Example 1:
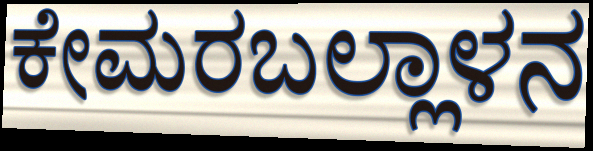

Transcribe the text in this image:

ಕೇಮರಬಲ್ಲಾಳನ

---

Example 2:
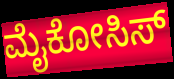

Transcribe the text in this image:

ಮೈಕೋಸಿಸ್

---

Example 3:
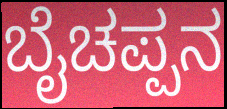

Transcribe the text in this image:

ಬೈಚಪ್ಪನ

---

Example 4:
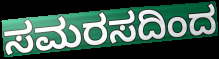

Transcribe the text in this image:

ಸಮರಸದಿಂದ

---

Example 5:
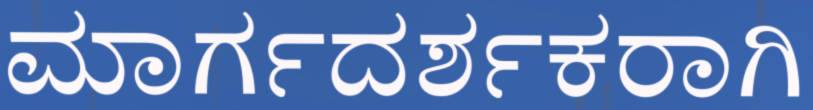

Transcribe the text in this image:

ಮಾರ್ಗದರ್ಶಕರಾಗಿ